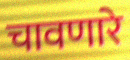
चावणारे